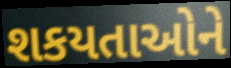
શકયતાઓને